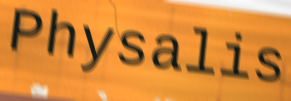
Physalis